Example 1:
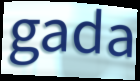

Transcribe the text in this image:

gada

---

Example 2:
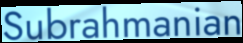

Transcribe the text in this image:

Subrahmanian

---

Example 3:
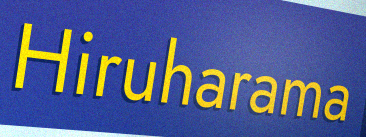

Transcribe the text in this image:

Hiruharama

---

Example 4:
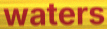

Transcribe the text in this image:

waters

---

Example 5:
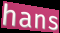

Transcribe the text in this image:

hans